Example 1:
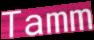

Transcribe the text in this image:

Tamm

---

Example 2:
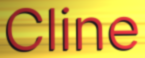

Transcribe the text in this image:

Cline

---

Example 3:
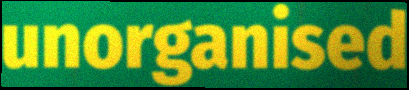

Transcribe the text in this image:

unorganised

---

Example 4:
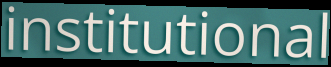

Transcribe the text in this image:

institutional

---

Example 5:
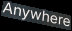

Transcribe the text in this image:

Anywhere